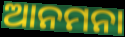
ଆନମନା